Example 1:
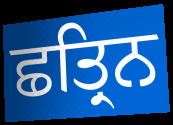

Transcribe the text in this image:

ਛਤ੍ਰਿਨ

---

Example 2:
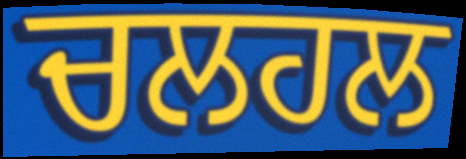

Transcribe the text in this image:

ਚਲਹਲ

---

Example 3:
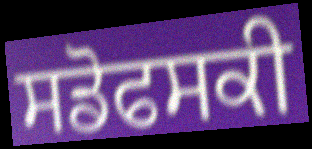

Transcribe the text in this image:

ਸਡੋਫਸਕੀ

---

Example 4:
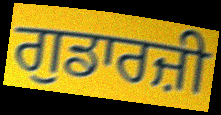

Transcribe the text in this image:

ਗੁਡਾਰਜ਼ੀ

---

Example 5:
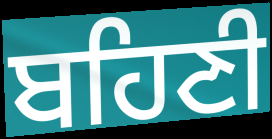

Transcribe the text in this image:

ਬਹਿਣੀ